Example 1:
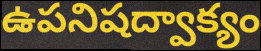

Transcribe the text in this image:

ఉపనిషద్వాక్యం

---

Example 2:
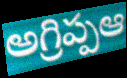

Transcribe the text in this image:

అగ్రిప్పఆ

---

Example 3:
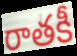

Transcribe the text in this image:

రాతకీ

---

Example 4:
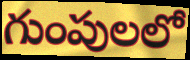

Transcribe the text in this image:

గుంపులలో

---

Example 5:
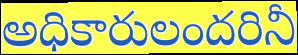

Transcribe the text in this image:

అధికారులందరినీ